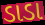
ડાડા